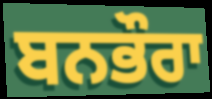
ਬਨਭੌਰਾ